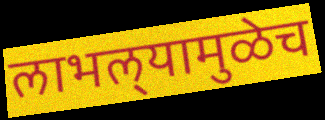
लाभल्यामुळेच